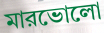
মারভোলো